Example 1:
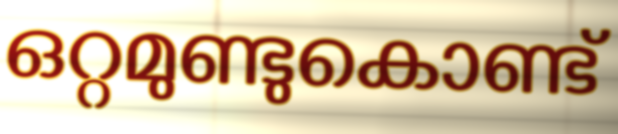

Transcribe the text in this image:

ഒറ്റമുണ്ടുകൊണ്ട്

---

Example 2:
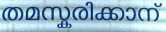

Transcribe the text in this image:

തമസ്കരിക്കാന്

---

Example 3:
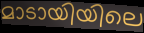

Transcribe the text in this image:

മാടായിയിലെ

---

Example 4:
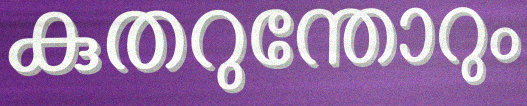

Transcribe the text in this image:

കുതറുന്തോറും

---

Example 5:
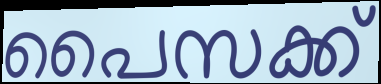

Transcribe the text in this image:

പൈസക്ക്